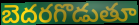
బెదరగొడుతూ